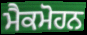
ਮੈਕਮੋਹਨ